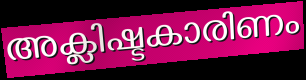
അക്ലിഷ്ടകാരിണം